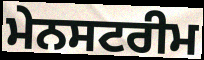
ਮੇਨਸਟਰੀਮ